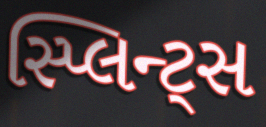
સ્પ્લિન્ટ્સ